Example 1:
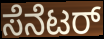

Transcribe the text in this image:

ಸೆನೆಟರ್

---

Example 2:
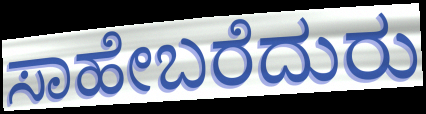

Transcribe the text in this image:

ಸಾಹೇಬರೆದುರು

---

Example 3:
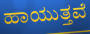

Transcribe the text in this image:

ಹಾಯುತ್ತವೆ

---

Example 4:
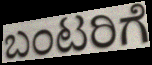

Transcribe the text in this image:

ಬಂಟರಿಗೆ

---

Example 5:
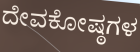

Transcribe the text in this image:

ದೇವಕೋಷ್ಠಗಳ